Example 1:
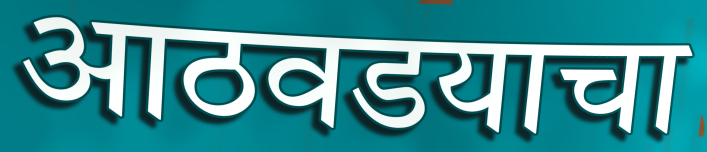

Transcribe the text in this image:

आठवडयाचा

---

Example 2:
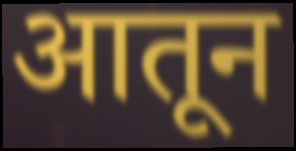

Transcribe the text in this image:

आतून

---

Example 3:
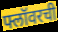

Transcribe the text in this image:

फ्लॉवरची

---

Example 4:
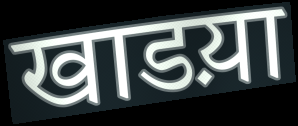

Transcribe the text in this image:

खाडय़ा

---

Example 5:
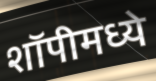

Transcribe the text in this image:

शॉपीमध्ये